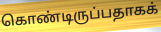
கொண்டிருப்பதாகக்